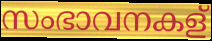
സംഭാവനകള്